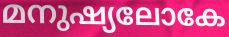
മനുഷ്യലോകേ